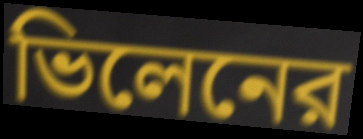
ভিলেনের